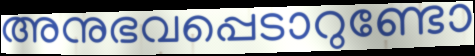
അനുഭവപ്പെടാറുണ്ടോ